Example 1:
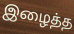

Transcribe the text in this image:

இழைத்த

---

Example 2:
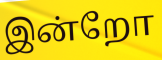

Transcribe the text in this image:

இன்றோ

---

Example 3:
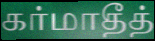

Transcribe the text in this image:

கர்மாதீத்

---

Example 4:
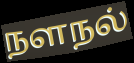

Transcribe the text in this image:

நளநல்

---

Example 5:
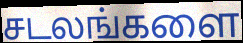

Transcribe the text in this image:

சடலங்களை